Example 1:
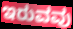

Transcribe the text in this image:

ಇರುವವು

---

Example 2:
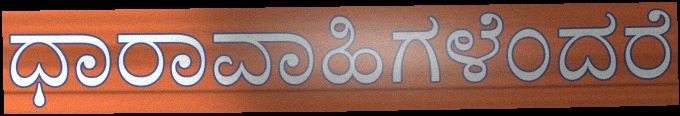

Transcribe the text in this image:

ಧಾರಾವಾಹಿಗಳೆಂದರೆ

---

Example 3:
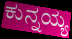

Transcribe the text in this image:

ಕುನ್ನಯ್ಯ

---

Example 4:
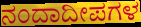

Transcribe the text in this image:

ನಂದಾದೀಪಗಳ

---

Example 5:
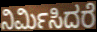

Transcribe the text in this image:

ನಿರ್ಮಿಸಿದರೆ